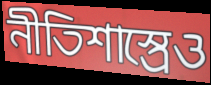
নীতিশাস্ত্রেও